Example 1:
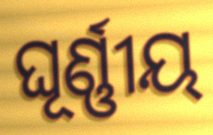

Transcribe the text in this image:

ଘୂର୍ଣ୍ଣୀୟ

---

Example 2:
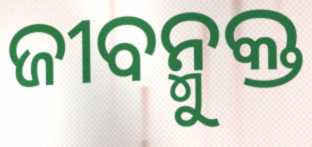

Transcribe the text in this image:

ଜୀବନ୍ମୁକ୍ତ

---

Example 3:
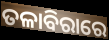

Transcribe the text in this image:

ତଳାବିରାରେ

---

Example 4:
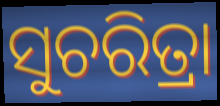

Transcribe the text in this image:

ସୁଚରିତ୍ରା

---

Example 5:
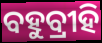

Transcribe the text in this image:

ବହୁବ୍ରୀହି